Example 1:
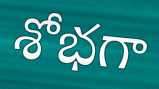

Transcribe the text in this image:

శోభగా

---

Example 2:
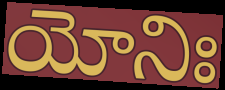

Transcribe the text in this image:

యోనిః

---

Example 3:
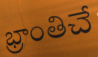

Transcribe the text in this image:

భ్రాంతిచే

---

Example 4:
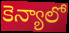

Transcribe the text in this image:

కెన్యాలో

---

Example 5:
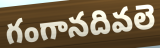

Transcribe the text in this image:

గంగానదివలె